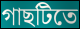
গাছটিতে